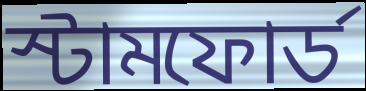
স্টামফোর্ড